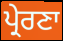
ਪ੍ਰੇਰਣਾ